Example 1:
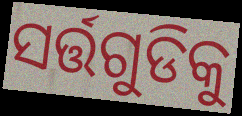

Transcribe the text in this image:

ସର୍ତ୍ତଗୁଡିକୁ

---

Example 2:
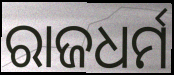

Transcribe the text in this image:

ରାଜଧର୍ମ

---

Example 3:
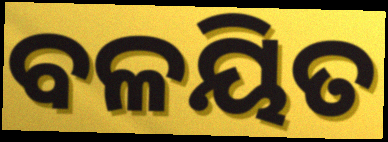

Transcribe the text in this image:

ବଳୟିତ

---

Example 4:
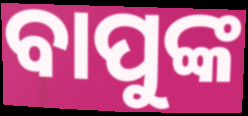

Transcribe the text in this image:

ବାପୁଙ୍କ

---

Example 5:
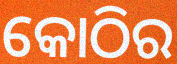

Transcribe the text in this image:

କୋଠିର